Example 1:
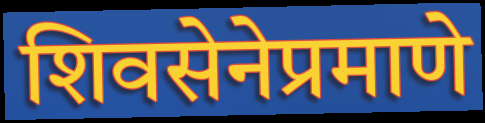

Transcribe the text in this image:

शिवसेनेप्रमाणे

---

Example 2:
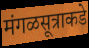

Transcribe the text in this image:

मंगळसूत्राकडे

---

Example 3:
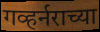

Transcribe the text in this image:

गव्हर्नराच्या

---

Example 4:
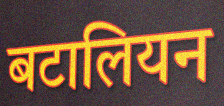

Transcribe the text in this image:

बटालियन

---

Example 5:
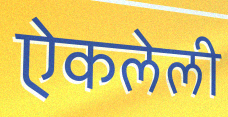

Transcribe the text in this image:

ऐकलेली